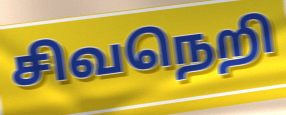
சிவநெறி